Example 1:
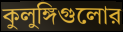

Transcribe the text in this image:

কুলুঙ্গিগুলোর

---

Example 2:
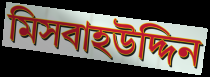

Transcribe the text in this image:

মিসবাহউদ্দিন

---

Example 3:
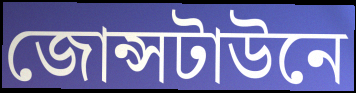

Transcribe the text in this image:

জোন্সটাউনে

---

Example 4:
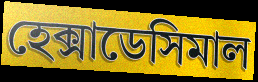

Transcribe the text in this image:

হেক্সাডেসিমাল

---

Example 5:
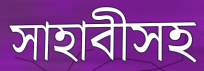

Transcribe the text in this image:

সাহাবীসহ